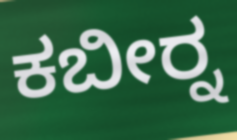
ಕಬೀರ್‍ನ